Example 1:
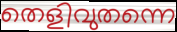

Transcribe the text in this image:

തെളിവുതന്നെ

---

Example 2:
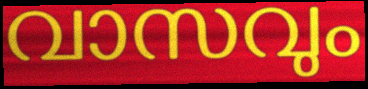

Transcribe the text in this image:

വാസവും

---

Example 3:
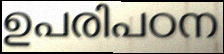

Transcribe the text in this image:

ഉപരിപഠന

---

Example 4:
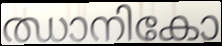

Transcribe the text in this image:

ഝാനികോ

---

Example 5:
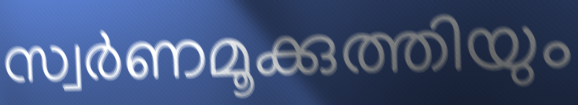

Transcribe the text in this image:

സ്വർണമൂക്കുത്തിയും